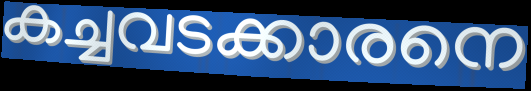
കച്ചവടക്കാരനെ